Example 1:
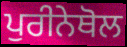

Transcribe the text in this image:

ਪੁਰੀਨੇਥੋਲ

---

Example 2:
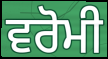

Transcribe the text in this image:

ਵਰੋਮੀ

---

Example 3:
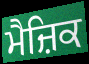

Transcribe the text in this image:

ਮੈਜ਼ਿਕ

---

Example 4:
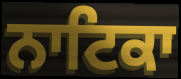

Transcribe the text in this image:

ਨਾਟਿਕਾ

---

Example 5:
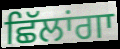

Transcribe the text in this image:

ਛਿੱਲਾਂਗਾ